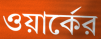
ওয়ার্কের